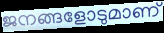
ജനങ്ങളോടുമാണ്